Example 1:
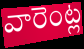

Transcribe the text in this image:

వారెంట్ల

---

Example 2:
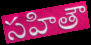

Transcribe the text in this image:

సహితౌ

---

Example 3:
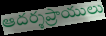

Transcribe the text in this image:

ఆదర్శప్రాయులు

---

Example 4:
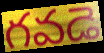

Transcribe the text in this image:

గవడె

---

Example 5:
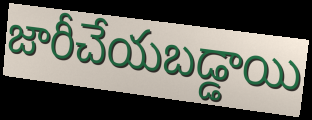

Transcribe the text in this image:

జారీచేయబడ్డాయి